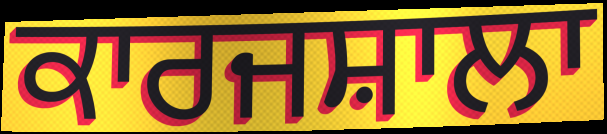
ਕਾਰਜਸ਼ਾਲਾ